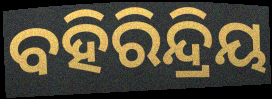
ବହିରିନ୍ଦ୍ରିୟ